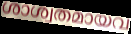
ശാശ്വതമായവ